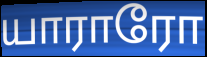
யாராரோ